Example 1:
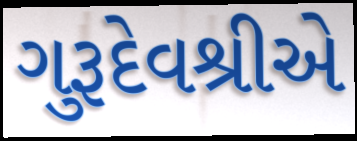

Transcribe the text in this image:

ગુરૂદેવશ્રીએ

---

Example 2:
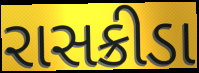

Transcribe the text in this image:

રાસક્રીડા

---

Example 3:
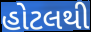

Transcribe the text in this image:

હોટલથી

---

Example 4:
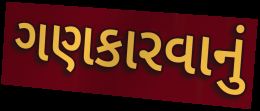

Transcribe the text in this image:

ગણકારવાનું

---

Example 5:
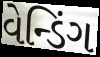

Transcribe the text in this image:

વેન્ડિંગ